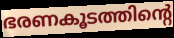
ഭരണകൂടത്തിന്റെ